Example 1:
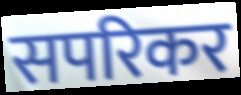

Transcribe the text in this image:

सपरिकर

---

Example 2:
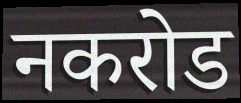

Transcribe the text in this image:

नकरोड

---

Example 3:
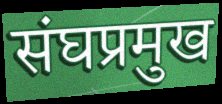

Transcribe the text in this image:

संघप्रमुख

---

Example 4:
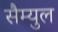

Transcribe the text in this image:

सैम्युल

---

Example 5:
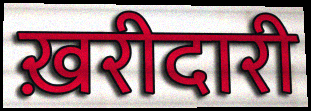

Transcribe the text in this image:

ख़रीदारी